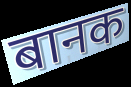
बानक